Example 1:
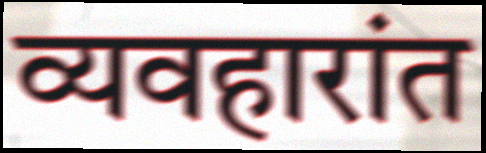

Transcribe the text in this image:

व्यवहारांत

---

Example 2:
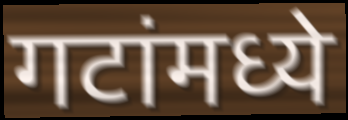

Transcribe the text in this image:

गटांमध्ये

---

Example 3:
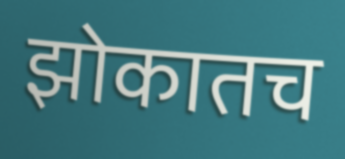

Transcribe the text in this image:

झोकातच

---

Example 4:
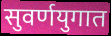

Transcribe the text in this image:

सुवर्णयुगात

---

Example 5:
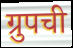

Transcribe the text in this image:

ग्रुपची